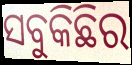
ସବୁକିଛିର